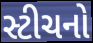
સ્ટીચનો